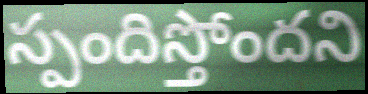
స్పందిస్తోందని